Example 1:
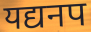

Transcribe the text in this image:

यद्यनप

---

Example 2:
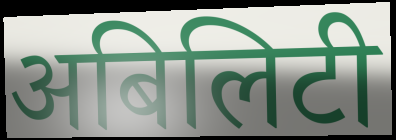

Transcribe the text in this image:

अबिलिटी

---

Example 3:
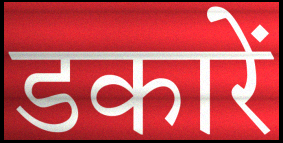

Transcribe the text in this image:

डकारें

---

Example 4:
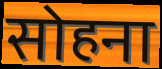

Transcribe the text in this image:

सोहना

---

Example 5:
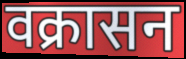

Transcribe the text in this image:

वक्रासन